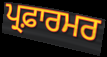
ਪ੍ਰਫ਼ਾਰਮਰ